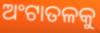
ଅଂଟାତଳକୁ